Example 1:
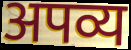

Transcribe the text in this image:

अपव्य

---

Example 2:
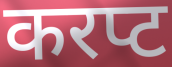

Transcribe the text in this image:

करप्ट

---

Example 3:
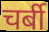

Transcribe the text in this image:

चर्बी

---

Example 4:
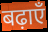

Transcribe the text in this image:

बढ़ाएँ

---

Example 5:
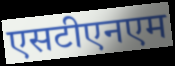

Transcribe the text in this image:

एसटीएनएम